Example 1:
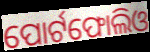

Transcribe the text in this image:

ପୋର୍ଟଫୋଲିଓ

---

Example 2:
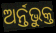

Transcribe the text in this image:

ଅର୍ନ୍ତଭୁକ୍ତ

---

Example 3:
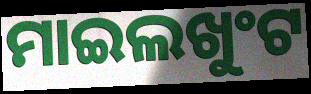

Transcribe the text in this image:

ମାଇଲଖୁଂଟ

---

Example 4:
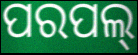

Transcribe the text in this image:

ପରପଲ୍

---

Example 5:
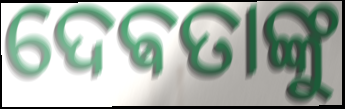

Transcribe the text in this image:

ଦେଵତାଙ୍କୁ